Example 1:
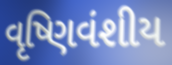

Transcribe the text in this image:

વૃષ્ણિવંશીય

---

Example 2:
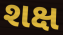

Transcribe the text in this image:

શક્ષ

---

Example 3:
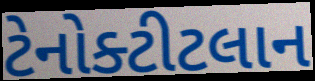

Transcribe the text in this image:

ટેનોક્ટીટલાન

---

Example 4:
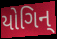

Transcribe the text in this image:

યોગિન્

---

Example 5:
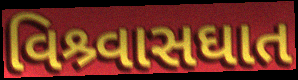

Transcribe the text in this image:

વિશ્ર્વાસઘાત